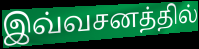
இவ்வசனத்தில்